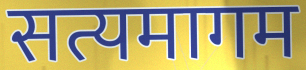
सत्यमागम